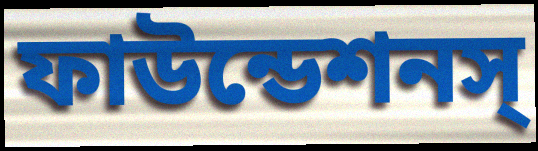
ফাউন্ডেশনস্